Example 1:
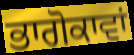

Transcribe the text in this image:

ਭਾਗੋਕਾਵਾਂ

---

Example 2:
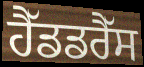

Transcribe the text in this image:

ਹੈੱਡਡਰੈੱਸ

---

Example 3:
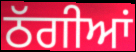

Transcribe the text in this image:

ਠੱਗੀਆਂ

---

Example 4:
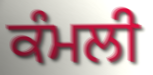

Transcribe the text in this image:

ਕੰਮਲੀ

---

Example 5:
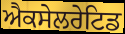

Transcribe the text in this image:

ਐਕਸੇਲਰੇਟਿਡ